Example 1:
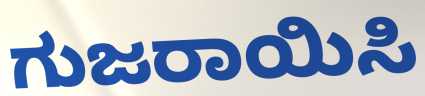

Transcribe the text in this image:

ಗುಜರಾಯಿಸಿ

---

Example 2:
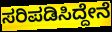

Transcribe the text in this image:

ಸರಿಪಡಿಸಿದ್ದೇನೆ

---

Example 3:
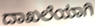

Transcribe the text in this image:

ದಾಖಲೆಯಾಗಿ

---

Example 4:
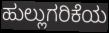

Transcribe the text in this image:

ಹುಲ್ಲುಗರಿಕೆಯ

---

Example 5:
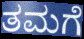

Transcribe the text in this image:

ತಮಗೆ